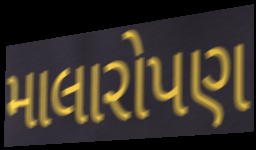
માલારોપણ